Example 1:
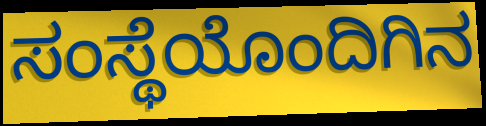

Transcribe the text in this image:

ಸಂಸ್ಥೆಯೊಂದಿಗಿನ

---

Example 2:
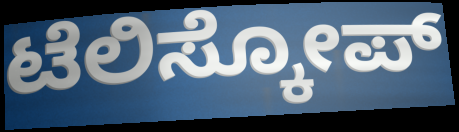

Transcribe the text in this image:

ಟೆಲಿಸ್ಕೋಪ್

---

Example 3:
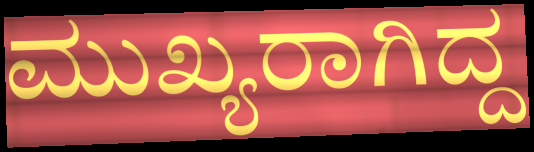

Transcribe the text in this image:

ಮುಖ್ಯರಾಗಿದ್ದ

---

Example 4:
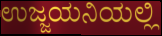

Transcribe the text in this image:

ಉಜ್ಜಯನಿಯಲ್ಲಿ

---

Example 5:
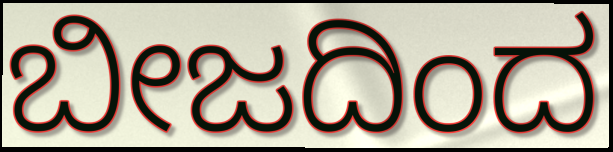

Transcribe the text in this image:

ಬೀಜದಿಂದ